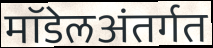
मॉडेलअंतर्गत